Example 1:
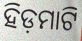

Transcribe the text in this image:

ହିଡ଼ମାଟି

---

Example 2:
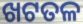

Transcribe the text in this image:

ଖଟତଳ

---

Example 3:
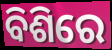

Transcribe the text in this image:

ବିଶିରେ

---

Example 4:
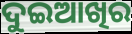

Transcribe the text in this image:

ଦୁଇଆଖିର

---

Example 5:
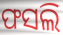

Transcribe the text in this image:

ଫସଲି